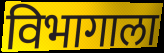
विभागाला